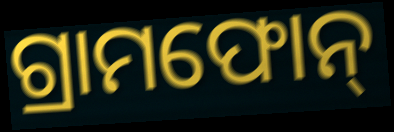
ଗ୍ରାମଫୋନ୍